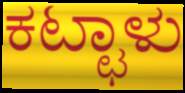
ಕಟ್ಟಾಳು